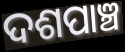
ଦଶପାଞ୍ଚ